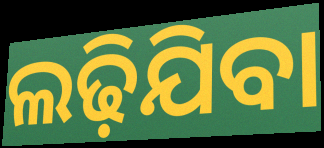
ଲଢ଼ିଯିବା